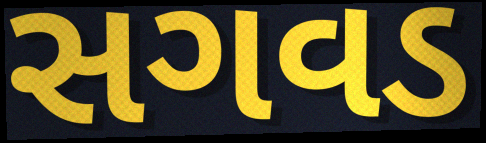
સગવડ